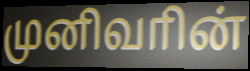
முனிவரின்